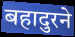
बहादुरने